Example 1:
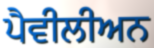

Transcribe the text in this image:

ਪੈਵੀਲੀਅਨ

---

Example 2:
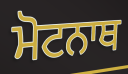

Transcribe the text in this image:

ਮੋਟਨਾਥ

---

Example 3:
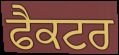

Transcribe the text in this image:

ਫੈਕਟਰ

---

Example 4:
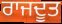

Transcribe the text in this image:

ਰਾਜਦੂਤ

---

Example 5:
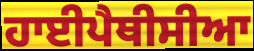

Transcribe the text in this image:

ਹਾਈਪੈਥੀਸੀਆ